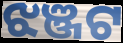
ଝଞ୍ଜଟ